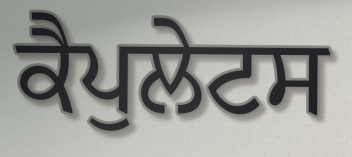
ਕੈਪੁਲੇਟਸ